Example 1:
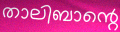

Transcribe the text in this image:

താലിബാന്റെ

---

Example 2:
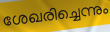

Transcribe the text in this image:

ശേഖരിച്ചെന്നും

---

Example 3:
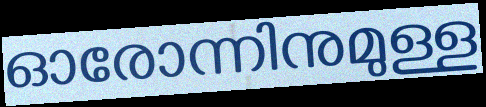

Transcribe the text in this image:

ഓരോന്നിനുമുള്ള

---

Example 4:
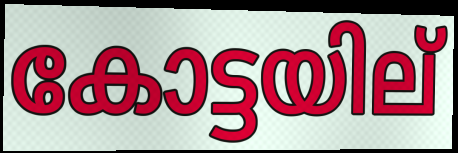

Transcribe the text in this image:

കോട്ടയില്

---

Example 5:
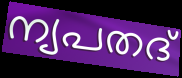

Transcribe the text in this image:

ന്യപതദ്